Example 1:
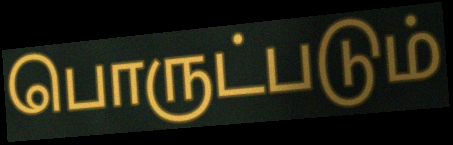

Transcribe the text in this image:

பொருட்படும்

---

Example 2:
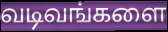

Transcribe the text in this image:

வடிவங்களை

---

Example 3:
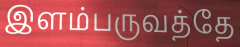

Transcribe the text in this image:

இளம்பருவத்தே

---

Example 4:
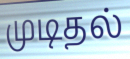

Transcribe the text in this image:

முடிதல்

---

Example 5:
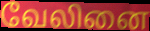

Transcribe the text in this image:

வேலினை